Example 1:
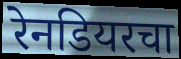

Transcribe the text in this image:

रेनडियरचा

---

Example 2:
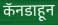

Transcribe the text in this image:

कॅनडाहून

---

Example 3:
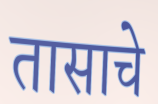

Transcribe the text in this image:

तासाचे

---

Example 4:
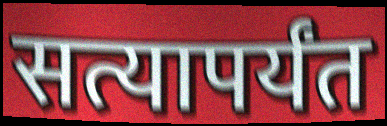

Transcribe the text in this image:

सत्यापर्यंत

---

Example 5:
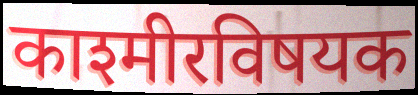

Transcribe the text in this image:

काश्मीरविषयक